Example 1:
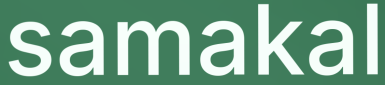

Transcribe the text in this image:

samakal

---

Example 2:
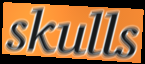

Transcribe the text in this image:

skulls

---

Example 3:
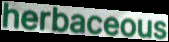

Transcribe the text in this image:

herbaceous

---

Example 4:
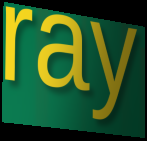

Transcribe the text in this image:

ray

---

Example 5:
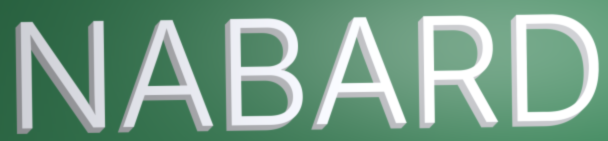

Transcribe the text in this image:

NABARD